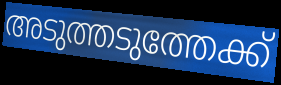
അടുത്തടുത്തേക്ക്